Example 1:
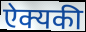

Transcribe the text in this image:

ऐक्यकी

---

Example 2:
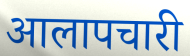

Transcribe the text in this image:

आलापचारी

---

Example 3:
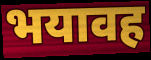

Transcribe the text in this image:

भयावह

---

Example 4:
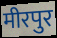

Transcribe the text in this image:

मीरपुर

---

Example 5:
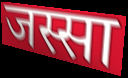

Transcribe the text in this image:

जस्सा